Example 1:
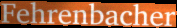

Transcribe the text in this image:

Fehrenbacher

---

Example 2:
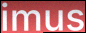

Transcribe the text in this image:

imus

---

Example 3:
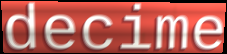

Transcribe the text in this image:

decime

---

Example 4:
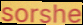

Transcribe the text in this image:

sorshe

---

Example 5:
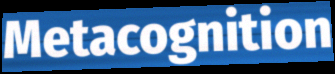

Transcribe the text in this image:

Metacognition